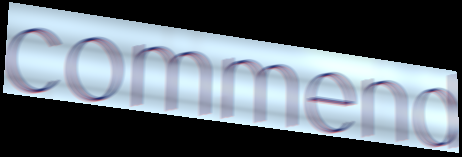
commend